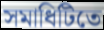
সমাধিটিতে